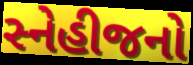
સ્નેહીજનો